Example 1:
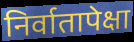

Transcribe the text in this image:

निर्वातापेक्षा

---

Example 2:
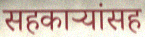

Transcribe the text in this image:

सहकाऱ्यांसह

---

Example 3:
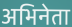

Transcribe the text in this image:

अभिनेता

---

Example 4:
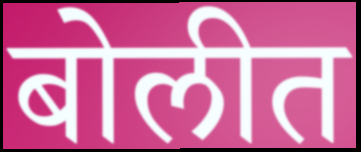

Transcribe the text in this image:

बोलीत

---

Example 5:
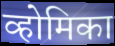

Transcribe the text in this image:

व्होमिका